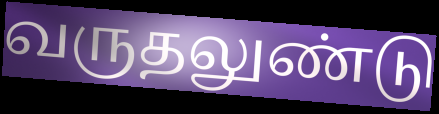
வருதலுண்டு